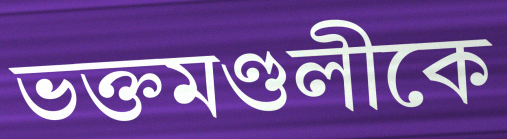
ভক্তমণ্ডলীকে